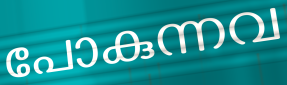
പോകുന്നവ